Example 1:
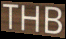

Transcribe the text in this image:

THB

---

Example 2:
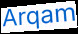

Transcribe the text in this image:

Arqam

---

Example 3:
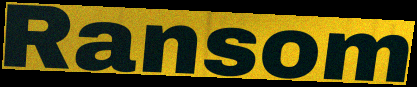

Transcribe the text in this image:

Ransom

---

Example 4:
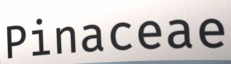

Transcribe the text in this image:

Pinaceae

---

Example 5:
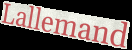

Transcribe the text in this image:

Lallemand